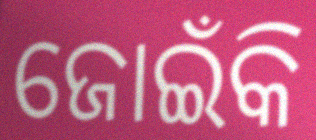
ଜୋଇଁକି